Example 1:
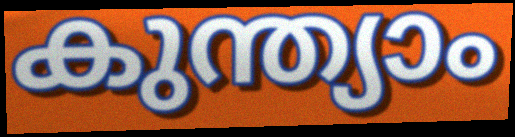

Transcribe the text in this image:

കുന്ത്യാം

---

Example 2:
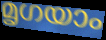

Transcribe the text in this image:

മൃഗയാം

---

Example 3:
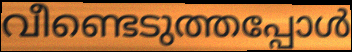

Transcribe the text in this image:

വീണ്ടെടുത്തപ്പോൾ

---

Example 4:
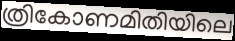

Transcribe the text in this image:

ത്രികോണമിതിയിലെ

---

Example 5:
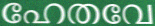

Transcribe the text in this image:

ഹേതവേ